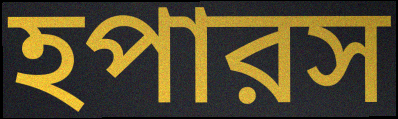
হপারস